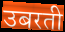
उबरती